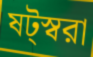
ষট্স্বরা